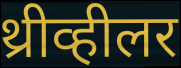
थ्रीव्हीलर